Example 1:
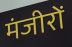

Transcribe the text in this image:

मंजीरों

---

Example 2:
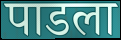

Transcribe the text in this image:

पाडला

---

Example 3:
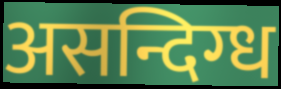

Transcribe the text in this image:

असन्दिग्ध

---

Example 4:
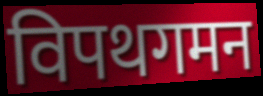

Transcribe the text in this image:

विपथगमन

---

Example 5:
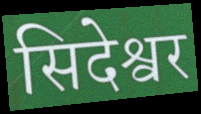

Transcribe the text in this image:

सिदेश्वर